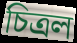
চিত্রল